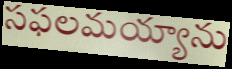
సఫలమయ్యాను